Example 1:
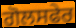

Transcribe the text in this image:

ਗੋਲਸਫੇਰ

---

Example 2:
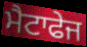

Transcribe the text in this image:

ਮੈਟਾਫੇਜ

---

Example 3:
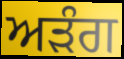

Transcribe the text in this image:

ਅੜੰਗ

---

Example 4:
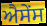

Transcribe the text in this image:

ਐਸੇਂਸ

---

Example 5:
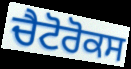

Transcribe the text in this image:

ਚੈਟੋਰੋਕਸ